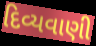
દિવ્યવાણી